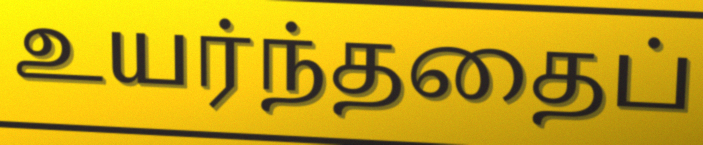
உயர்ந்ததைப்